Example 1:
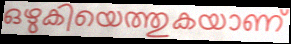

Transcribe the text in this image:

ഒഴുകിയെത്തുകയാണ്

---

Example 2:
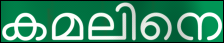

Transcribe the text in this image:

കമലിനെ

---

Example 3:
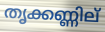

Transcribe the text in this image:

തൃക്കണ്ണില്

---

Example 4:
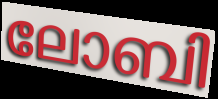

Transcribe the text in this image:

ലോബി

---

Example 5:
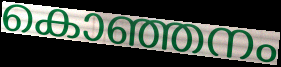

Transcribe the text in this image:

കൊഞ്ഞനം